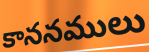
కాననములు